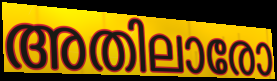
അതിലാരോ